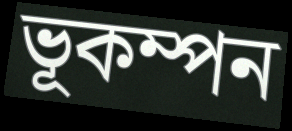
ভূকম্পন